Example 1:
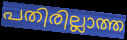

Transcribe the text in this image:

പതിരില്ലാത്ത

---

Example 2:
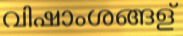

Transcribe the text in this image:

വിഷാംശങ്ങള്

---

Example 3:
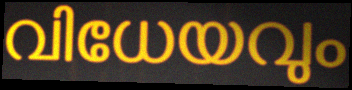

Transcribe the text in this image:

വിധേയവും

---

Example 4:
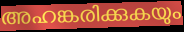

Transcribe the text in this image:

അഹങ്കരിക്കുകയും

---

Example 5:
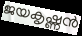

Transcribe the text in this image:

ജയകൃഷ്ണൻ